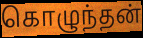
கொழுந்தன்